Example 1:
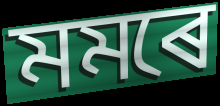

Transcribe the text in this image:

মমৰে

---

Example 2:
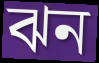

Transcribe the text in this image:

ঝন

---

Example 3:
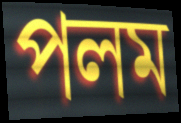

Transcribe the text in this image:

পলম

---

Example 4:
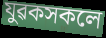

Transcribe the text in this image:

যুৱকসকলে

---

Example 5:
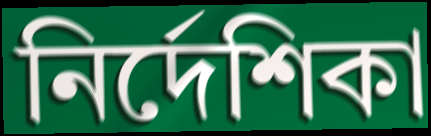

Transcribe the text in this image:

নিৰ্দেশিকা